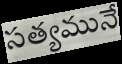
సత్యమునే